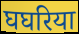
घघरिया